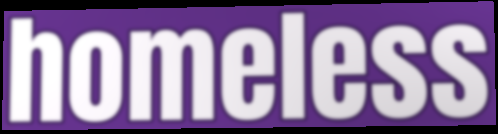
homeless